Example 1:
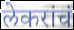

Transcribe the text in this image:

लेकरांचं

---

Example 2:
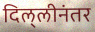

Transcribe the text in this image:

दिल्लीनंतर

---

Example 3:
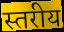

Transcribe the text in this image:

स्तरीय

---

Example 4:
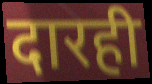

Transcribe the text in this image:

दारही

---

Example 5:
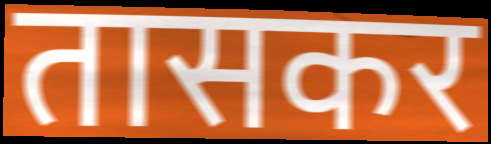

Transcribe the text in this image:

तासकर